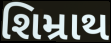
શિમ્રાથ